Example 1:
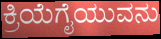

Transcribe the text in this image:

ಕ್ರಿಯೆಗೈಯುವನು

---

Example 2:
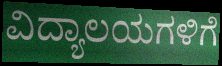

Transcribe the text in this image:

ವಿದ್ಯಾಲಯಗಳಿಗೆ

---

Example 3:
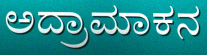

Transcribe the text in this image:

ಅದ್ರಾಮಾಕನ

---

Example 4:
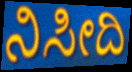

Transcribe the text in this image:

ನಿಸೀದಿ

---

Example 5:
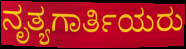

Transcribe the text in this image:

ನೃತ್ಯಗಾರ್ತಿಯರು